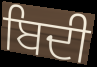
ਬਿਦੀ